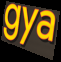
gya